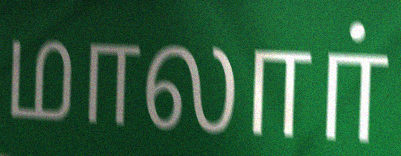
மாலார்